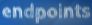
endpoints